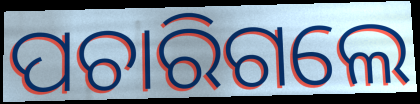
ପଚାରିଗଲେ